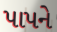
પાપને